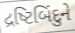
દ્રષ્ટિબિંદુને